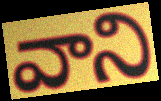
వాని